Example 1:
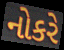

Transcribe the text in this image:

નોકરે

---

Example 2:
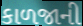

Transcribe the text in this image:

કાળજાની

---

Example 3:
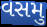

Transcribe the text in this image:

વસમુ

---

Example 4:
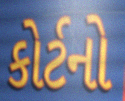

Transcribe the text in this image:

કોર્ટનો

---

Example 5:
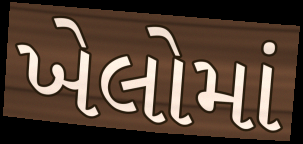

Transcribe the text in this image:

ખેલોમાં